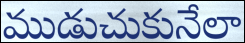
ముడుచుకునేలా